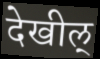
देखील्